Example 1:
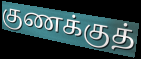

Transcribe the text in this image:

குணக்குத்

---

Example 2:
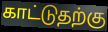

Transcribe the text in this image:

காட்டுதற்கு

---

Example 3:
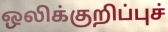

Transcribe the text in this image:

ஒலிக்குறிப்புச்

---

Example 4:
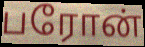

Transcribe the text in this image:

பரோன்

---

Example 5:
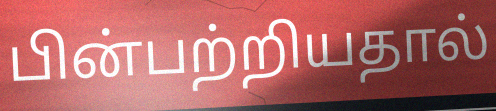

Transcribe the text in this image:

பின்பற்றியதால்